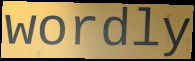
wordly